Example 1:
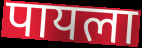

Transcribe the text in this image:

पायला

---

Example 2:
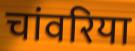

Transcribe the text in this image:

चांवरिया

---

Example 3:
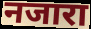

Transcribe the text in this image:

नजारा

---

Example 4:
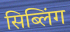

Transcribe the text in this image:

सिब्लिंग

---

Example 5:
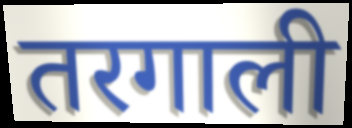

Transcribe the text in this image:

तरगाली